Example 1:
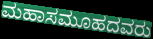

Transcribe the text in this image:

ಮಹಾಸಮೂಹದವರು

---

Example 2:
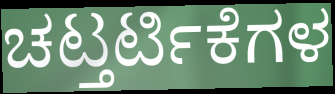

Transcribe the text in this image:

ಚಟ್ತರ್ಟಿಕೆಗಳ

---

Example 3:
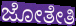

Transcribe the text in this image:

ಜೋತೇತಿ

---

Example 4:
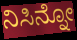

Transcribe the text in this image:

ನಿಸಿನ್ನೋ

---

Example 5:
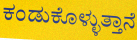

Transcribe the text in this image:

ಕಂಡುಕೊಳ್ಳುತ್ತಾನೆ